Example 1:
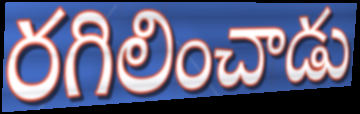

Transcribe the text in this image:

రగిలించాడు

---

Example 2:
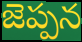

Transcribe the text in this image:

జెప్పన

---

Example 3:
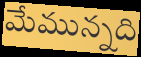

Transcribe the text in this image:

మేమున్నది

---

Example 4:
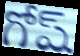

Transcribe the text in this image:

గోష్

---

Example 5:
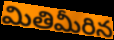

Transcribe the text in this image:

మితిమీరిన